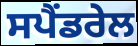
ਸਪੈਂਡਰੇਲ